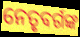
ନେତୃବର୍ଗଙ୍କ